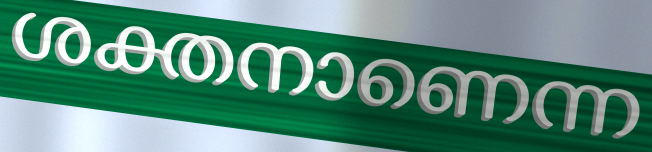
ശക്തനാണെന്ന